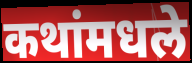
कथांमधले